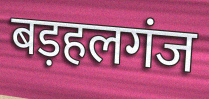
बड़हलगंज